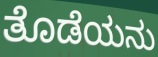
ತೊಡೆಯನು